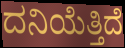
ದನಿಯೆತ್ತಿದೆ